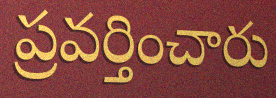
ప్రవర్తించారు